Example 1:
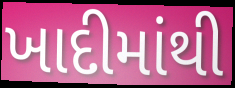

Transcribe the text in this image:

ખાદીમાંથી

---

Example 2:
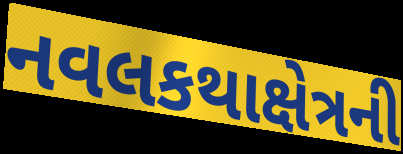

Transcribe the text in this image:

નવલકથાક્ષેત્રની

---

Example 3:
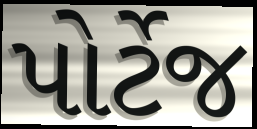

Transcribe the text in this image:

પોર્ટેજ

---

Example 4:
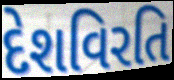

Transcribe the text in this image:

દેશવિરતિ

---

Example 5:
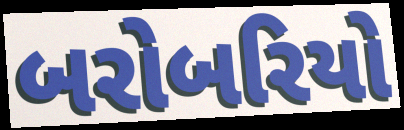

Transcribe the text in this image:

બરોબરિયો